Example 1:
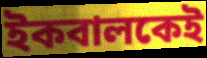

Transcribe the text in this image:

ইকবালকেই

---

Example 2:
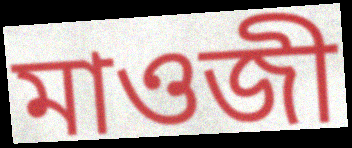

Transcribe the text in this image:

মাওজী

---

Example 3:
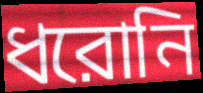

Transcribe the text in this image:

ধরোনি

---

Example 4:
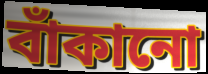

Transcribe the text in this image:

বাঁকানো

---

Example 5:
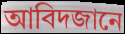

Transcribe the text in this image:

আবিদজানে